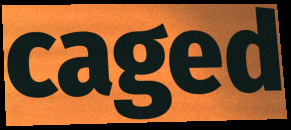
caged